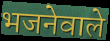
भजनेवाले